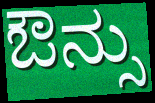
ಔನ್ಸು